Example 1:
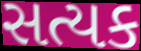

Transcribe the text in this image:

સત્યક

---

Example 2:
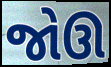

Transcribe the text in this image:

જોઊ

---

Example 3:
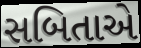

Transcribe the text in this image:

સબિતાએ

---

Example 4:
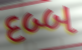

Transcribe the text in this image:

દબ્બ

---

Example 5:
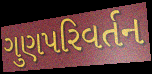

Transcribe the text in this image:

ગુણપરિવર્તન